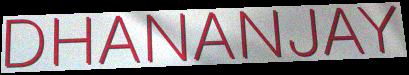
DHANANJAY